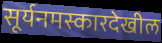
सूर्यनमस्कारदेखील